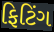
ફિટિંગ